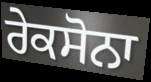
ਰੇਕਸੋਨਾ